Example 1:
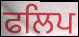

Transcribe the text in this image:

ਫਲਿਪ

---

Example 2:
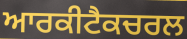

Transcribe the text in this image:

ਆਰਕੀਟੈਕਚਰਲ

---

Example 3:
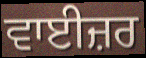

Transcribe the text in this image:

ਵਾਈਜ਼ਰ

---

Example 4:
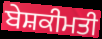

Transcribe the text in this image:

ਬੇਸ਼ਕੀਮਤੀ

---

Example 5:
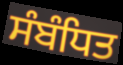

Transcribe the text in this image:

ਸੰਬੰਧਿਤ